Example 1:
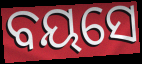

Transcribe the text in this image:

ବୟସେ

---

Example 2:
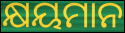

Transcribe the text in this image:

କ୍ଷୟମାନ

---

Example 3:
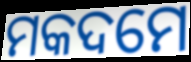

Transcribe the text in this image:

ମକଦମେ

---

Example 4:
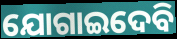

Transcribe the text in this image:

ଯୋଗାଇଦେବି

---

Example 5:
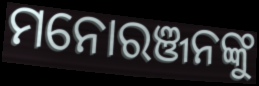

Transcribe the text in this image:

ମନୋରଞ୍ଜନଙ୍କୁ